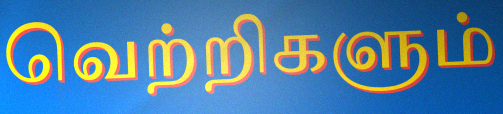
வெற்றிகளும்